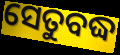
ସେତୁବଦ୍ଧ